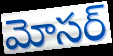
మోసర్